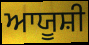
ਆਯੂਸ਼ੀ